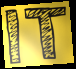
IT